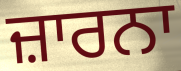
ਜ਼ਾਰਨਾ